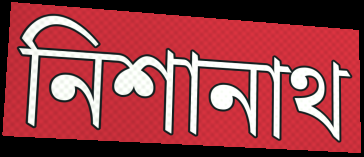
নিশানাথ